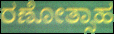
ರಣೋತ್ಸಾಹ